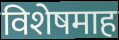
विशेषमाह